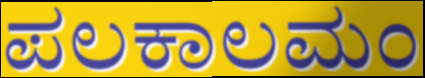
ಪಲಕಾಲಮಂ